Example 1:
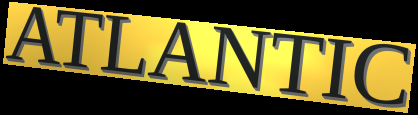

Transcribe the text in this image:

ATLANTIC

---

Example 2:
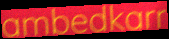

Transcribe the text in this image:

ambedkarr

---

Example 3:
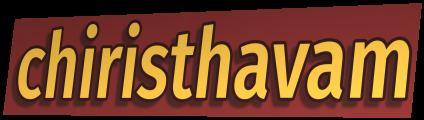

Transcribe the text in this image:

chiristhavam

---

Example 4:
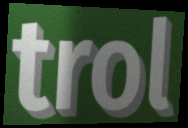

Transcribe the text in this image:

trol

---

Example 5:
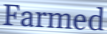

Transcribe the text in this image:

Farmed